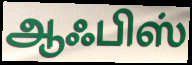
ஆஃபிஸ்